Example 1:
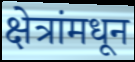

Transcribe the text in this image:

क्षेत्रांमधून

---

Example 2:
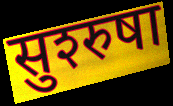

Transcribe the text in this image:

सुश्रुषा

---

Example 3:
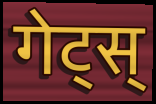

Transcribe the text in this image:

गेट्स्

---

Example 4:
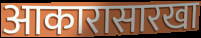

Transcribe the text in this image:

आकारासारखा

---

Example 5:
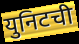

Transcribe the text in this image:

युनिटची